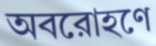
অবরোহণে